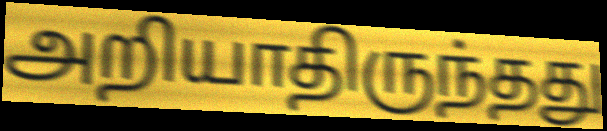
அறியாதிருந்தது